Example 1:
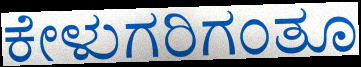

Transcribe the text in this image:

ಕೇಳುಗರಿಗಂತೂ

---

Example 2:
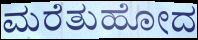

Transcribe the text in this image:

ಮರೆತುಹೋದ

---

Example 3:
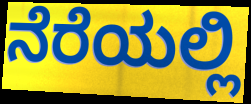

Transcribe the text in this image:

ನೆರೆಯಲ್ಲಿ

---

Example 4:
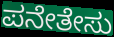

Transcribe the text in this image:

ಪನೇತೇಸು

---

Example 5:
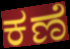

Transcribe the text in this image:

ಕಣೆ